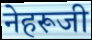
नेहरूजी